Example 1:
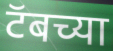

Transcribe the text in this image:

टॅबच्या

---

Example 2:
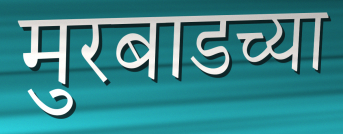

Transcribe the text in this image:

मुरबाडच्या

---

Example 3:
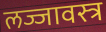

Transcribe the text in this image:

लज्जावस्त्र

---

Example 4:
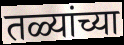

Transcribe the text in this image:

तळ्यांच्या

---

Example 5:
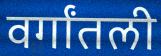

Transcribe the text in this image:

वर्गांतली